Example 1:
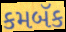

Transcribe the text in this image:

કમબૅક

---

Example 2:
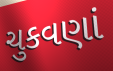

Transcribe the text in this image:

ચુકવણાં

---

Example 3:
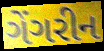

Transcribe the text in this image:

ગેંગરીન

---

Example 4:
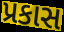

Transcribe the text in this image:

પ્રકાસ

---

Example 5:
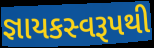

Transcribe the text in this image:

જ્ઞાયકસ્વરૂપથી